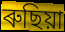
ৰুছিয়া